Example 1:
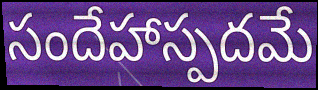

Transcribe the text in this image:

సందేహాస్పదమే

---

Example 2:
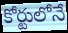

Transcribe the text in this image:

కోర్టులోనే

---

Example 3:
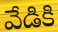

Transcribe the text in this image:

వేడికి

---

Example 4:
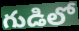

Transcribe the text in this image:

గుడిలో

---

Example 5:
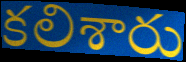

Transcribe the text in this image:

కలిశారు